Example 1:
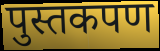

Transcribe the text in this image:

पुस्तकपण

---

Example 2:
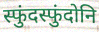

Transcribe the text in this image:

स्फुंदस्फुंदोनि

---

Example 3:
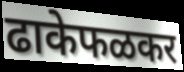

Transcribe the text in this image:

ढाकेफळकर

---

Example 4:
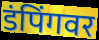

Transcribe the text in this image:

डंपिंगवर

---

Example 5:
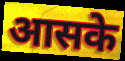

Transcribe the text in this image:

आसके